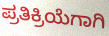
ಪ್ರತಿಕ್ರಿಯೆಗಾಗಿ